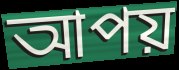
আপয়